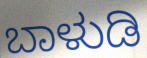
ಬಾಳುಡಿ